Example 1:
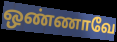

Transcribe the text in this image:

ஒண்ணாவே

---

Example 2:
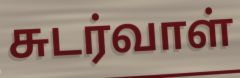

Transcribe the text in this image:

சுடர்வாள்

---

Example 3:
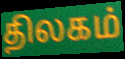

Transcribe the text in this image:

திலகம்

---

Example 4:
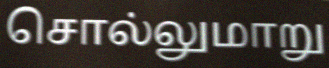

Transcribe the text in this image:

சொல்லுமாறு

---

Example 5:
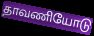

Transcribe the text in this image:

தாவணியோடு